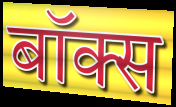
बॉक्स